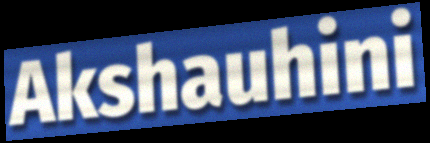
Akshauhini